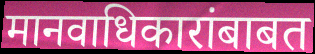
मानवाधिकारांबाबत